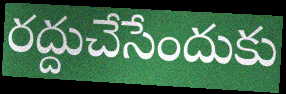
రద్దుచేసేందుకు